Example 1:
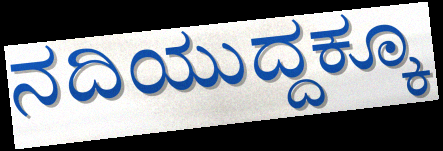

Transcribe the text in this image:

ನದಿಯುದ್ದಕ್ಕೂ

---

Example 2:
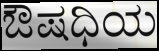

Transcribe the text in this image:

ಔಷಧಿಯ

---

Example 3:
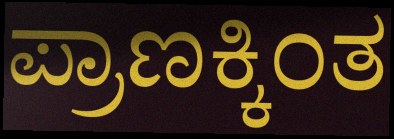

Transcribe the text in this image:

ಪ್ರಾಣಕ್ಕಿಂತ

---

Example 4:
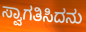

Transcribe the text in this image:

ಸ್ವಾಗತಿಸಿದನು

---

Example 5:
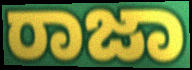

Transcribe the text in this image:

ರಾಜಾ